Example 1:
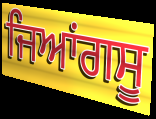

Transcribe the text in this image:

ਜਿਆਂਗਸੂ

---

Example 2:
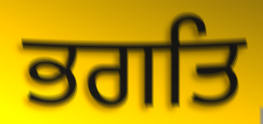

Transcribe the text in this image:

ਭਗਤਿ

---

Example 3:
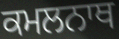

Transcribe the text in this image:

ਕਮਲਨਾਥ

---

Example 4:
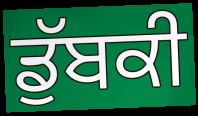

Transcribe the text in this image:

ਡੁੱਬਕੀ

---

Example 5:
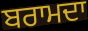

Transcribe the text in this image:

ਬਰਾਮਦਾ